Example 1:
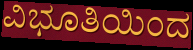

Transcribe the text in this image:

ವಿಭೂತಿಯಿಂದ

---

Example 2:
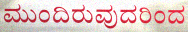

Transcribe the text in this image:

ಮುಂದಿರುವುದರಿಂದ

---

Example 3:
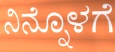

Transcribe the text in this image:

ನಿನ್ನೊಳಗೆ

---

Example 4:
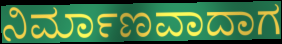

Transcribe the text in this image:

ನಿರ್ಮಾಣವಾದಾಗ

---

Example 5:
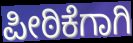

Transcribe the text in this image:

ಪೀಠಿಕೆಗಾಗಿ